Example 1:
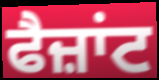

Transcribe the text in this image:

ਫੈਜ਼ਾਂਟ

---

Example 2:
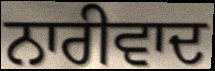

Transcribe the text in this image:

ਨਾਰੀਵਾਦ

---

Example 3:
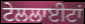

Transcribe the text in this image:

ਟੇਲਲਾਈਟਾਂ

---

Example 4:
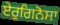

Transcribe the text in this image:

ਏਰੁਗਿਨੋਸਾ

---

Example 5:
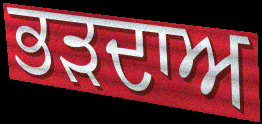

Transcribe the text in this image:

ਭੜਦਾਅ